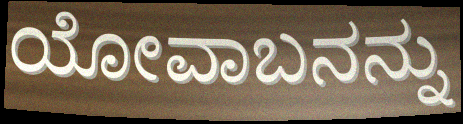
ಯೋವಾಬನನ್ನು